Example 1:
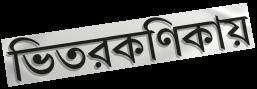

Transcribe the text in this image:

ভিতরকণিকায়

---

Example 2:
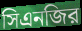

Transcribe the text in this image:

সিএনজির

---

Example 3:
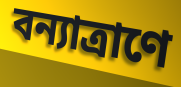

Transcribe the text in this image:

বন্যাত্রাণে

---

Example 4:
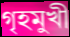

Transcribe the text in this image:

গৃহমুখী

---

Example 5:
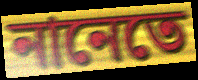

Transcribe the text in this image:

নানেতে